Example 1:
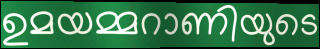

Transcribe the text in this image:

ഉമയമ്മറാണിയുടെ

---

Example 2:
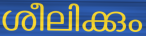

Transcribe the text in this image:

ശീലിക്കും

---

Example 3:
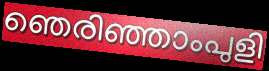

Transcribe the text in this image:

ഞെരിഞ്ഞാംപുളി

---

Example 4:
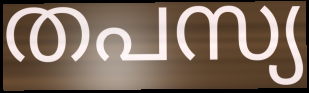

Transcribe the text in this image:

തപസ്യ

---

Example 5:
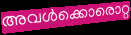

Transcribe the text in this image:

അവൾക്കൊരൊറ്റ